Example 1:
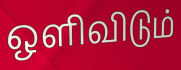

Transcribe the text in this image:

ஒளிவிடும்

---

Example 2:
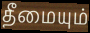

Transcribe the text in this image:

தீமையும்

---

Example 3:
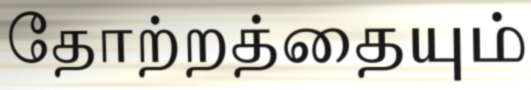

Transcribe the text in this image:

தோற்றத்தையும்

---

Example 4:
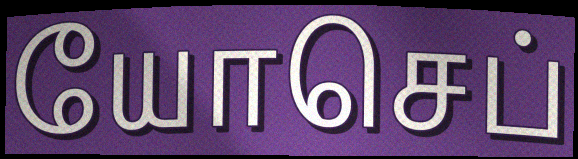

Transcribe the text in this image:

யோசெப்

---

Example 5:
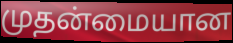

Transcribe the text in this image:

முதன்மையான